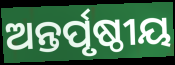
ଅନ୍ତର୍ପୃଷ୍ଠୀୟ